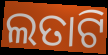
ଲତାଟି